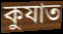
কুযাত